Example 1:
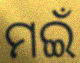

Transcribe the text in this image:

ମଇଁ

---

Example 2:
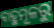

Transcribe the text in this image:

ବାହୁମୂଳରୁ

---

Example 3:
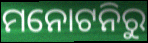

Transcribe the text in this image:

ମନୋଟନିରୁ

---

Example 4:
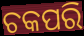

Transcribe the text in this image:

ଚକପରି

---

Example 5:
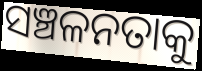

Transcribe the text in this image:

ସଞ୍ଚଳନତାକୁ